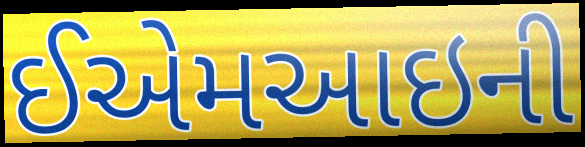
ઈએમઆઇની